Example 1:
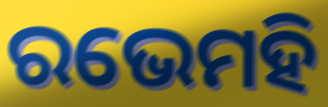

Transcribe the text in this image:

ରଭେମହି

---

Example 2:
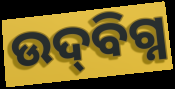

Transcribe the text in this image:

ଉଦ୍‌ବିଗ୍ନ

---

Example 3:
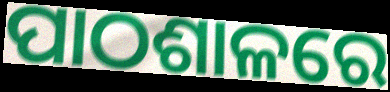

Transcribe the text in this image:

ପାଠଶାଳରେ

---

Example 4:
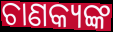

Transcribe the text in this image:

ଚାଣକ୍ୟଙ୍କ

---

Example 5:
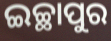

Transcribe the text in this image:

ଇଚ୍ଛାପୁର